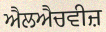
ਐਲਐਚਵੀਜ਼